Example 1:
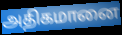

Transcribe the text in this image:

அதிகமானை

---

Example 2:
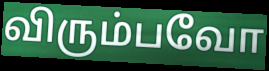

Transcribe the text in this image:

விரும்பவோ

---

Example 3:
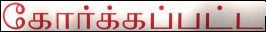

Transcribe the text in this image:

கோர்க்கப்பட்ட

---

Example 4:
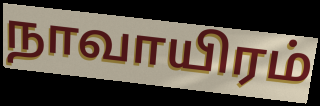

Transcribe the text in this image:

நாவாயிரம்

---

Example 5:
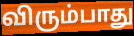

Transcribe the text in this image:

விரும்பாது